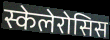
स्केलेरोसिस